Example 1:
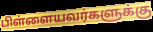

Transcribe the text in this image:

பிள்ளையவர்களுக்கு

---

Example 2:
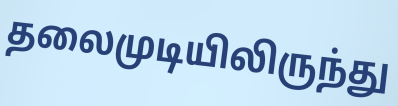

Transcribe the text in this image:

தலைமுடியிலிருந்து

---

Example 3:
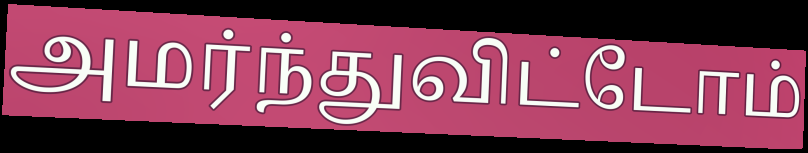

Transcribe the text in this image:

அமர்ந்துவிட்டோம்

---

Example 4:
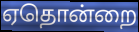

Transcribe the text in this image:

ஏதொன்றை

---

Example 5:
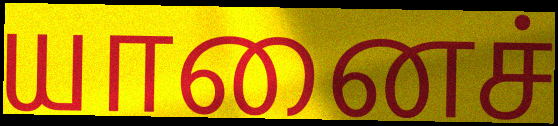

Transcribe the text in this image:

யானைச்